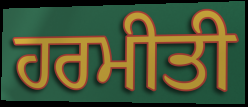
ਹਰਮੀਤੀ